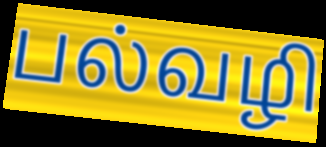
பல்வழி